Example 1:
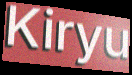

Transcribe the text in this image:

Kiryu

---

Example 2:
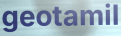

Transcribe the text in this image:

geotamil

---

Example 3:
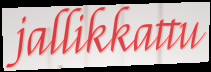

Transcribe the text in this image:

jallikkattu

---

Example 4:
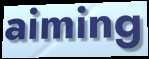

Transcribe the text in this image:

aiming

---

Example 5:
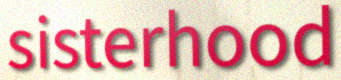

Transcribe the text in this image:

sisterhood